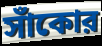
সাঁকোর